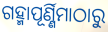
ଗହ୍ମାପୂର୍ଣ୍ଣିମାଠାରୁ